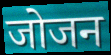
जोजन